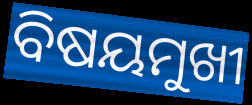
ବିଷୟମୁଖୀ